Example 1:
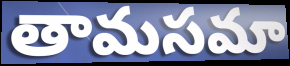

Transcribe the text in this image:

తామసమా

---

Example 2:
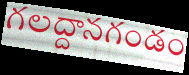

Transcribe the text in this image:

గలద్దానగండం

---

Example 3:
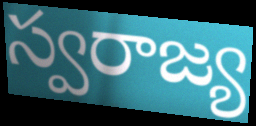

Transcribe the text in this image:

స్వరాజ్య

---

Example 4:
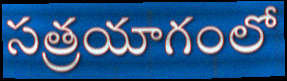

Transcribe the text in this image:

సత్రయాగంలో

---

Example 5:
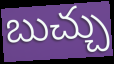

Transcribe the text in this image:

బుచ్చు